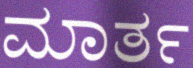
ಮಾರ್ತ